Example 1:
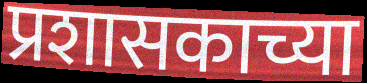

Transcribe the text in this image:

प्रशासकाच्या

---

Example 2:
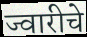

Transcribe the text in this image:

ज्वारीचे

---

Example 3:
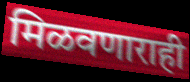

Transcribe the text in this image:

मिळवणाराही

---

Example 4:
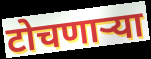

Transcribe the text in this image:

टोचणाऱ्या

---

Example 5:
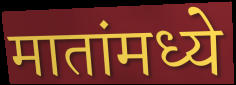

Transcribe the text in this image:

मातांमध्ये